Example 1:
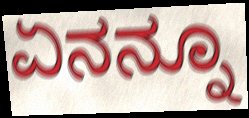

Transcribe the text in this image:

ಏನನ್ನೂ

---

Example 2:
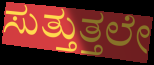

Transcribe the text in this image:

ಸುತ್ತುತ್ತಲೇ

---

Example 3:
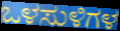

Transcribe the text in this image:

ಒಳಸುಳಿಗಳ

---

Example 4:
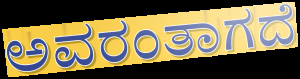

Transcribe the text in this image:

ಅವರಂತಾಗದೆ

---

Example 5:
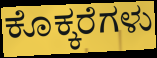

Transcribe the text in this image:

ಕೊಕ್ಕರೆಗಳು